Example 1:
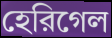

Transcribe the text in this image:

হেরিগেল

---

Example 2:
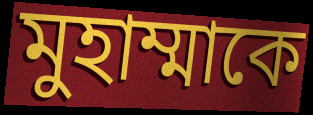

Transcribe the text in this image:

মুহাম্মাকে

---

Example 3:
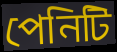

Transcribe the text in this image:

পেনিটি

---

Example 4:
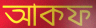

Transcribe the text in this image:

আকফ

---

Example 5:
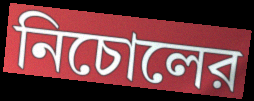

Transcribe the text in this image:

নিচোলের